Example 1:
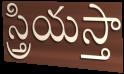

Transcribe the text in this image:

స్త్రియస్తా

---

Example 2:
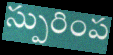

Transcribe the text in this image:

స్పురింప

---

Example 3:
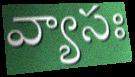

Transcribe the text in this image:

వ్యాసః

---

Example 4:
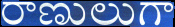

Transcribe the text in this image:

రాణులుగా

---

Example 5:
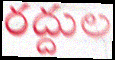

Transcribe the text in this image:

రద్దుల